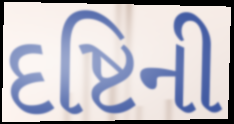
દષ્ટિની